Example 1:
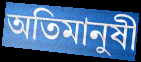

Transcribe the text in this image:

অতিমানুষী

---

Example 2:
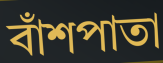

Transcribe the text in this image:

বাঁশপাতা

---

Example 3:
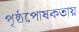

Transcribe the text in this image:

পৃষ্ঠপোষকতায়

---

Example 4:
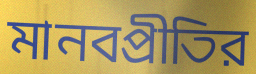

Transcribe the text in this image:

মানবপ্রীতির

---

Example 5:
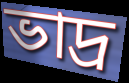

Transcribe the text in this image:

ভাদ্র